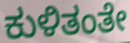
ಕುಳಿತಂತೇ